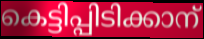
കെട്ടിപ്പിടിക്കാന്